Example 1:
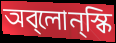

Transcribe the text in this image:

অব্‌লোন্‌স্কি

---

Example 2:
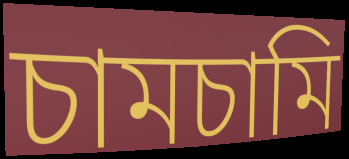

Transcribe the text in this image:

চামচামি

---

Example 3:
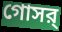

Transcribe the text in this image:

গোসর্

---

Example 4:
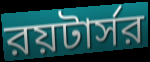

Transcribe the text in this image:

রয়টার্সর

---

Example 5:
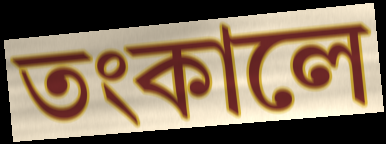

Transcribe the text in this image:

তংকালে